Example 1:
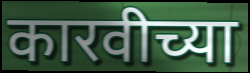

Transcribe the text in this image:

कारवीच्या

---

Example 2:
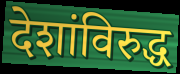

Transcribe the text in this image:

देशांविरुद्ध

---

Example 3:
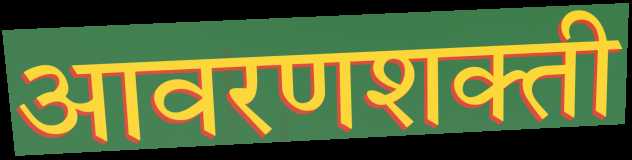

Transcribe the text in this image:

आवरणशक्ती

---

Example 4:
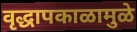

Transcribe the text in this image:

वृद्धापकाळामुळे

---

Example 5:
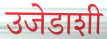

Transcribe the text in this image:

उजेडाशी